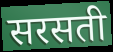
सरसती